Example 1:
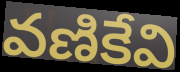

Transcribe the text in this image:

వణికేవి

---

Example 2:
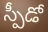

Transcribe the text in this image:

స్పీడో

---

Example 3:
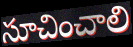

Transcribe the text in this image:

సూచించాలి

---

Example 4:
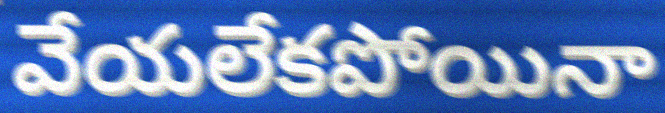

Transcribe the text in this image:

వేయలేకపోయినా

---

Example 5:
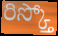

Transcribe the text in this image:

రిస్క్తో